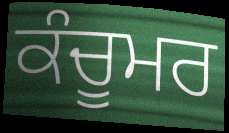
ਕੰਚੂਮਰ